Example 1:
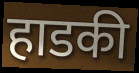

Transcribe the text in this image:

हाडकी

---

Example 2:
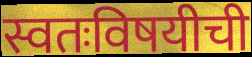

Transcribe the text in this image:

स्वतःविषयीची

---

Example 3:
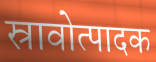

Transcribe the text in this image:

स्रावोत्पादक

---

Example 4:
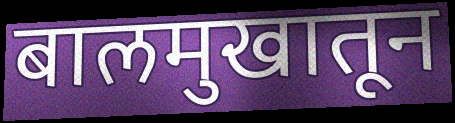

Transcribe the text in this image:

बालमुखातून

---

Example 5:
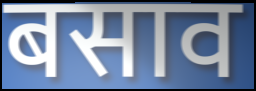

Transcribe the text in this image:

बसाव